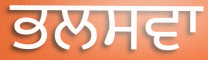
ਭਲਸਵਾ